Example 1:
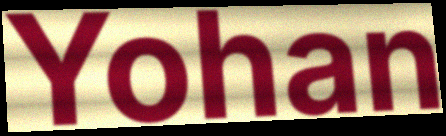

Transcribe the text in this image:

Yohan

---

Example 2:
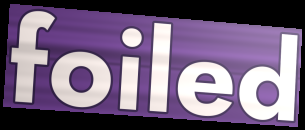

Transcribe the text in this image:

foiled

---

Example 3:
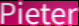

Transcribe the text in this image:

Pieter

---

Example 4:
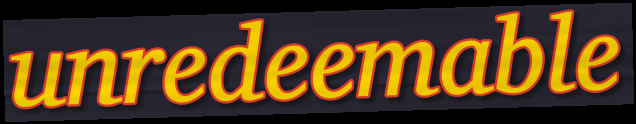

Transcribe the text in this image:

unredeemable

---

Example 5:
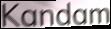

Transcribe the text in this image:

Kandam